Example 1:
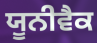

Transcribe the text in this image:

ਯੂਨੀਵੈਕ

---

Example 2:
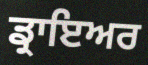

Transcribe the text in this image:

ਡ੍ਰਾਇਅਰ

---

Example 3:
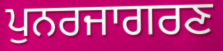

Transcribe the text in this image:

ਪੁਨਰਜਾਗਰਣ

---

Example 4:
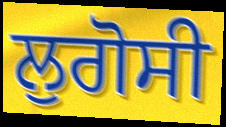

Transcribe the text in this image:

ਲੁਗੋਸੀ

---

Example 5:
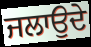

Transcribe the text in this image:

ਜਲਾਉਦੇ